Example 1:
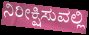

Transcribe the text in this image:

ನಿರೀಕ್ಷಿಸುವಲ್ಲಿ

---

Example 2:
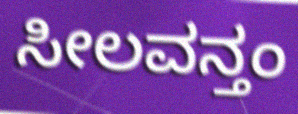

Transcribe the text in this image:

ಸೀಲವನ್ತಂ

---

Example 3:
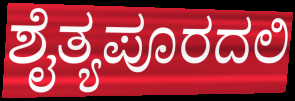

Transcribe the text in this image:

ಶೈತ್ಯಪೂರದಲಿ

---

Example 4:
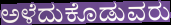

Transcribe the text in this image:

ಅಳೆದುಕೊಡುವರು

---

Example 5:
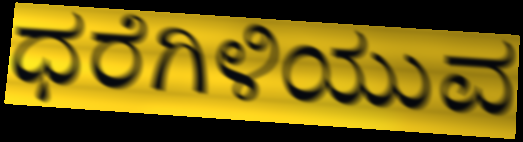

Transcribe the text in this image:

ಧರೆಗಿಳಿಯುವ